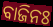
ବାଜିନଃ